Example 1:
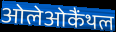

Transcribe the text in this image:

ओलेओकैंथल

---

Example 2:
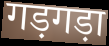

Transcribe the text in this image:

गड़गड़ा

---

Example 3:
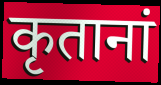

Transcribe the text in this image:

कृतानां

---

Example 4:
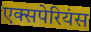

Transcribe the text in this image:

एक्सपेरियंस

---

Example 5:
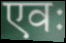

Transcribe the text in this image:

एवः